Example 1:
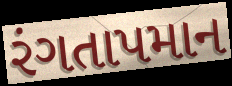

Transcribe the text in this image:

રંગતાપમાન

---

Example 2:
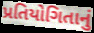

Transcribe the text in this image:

પ્રતિયોગિતાનું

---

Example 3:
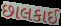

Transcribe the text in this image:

છાલકાઈ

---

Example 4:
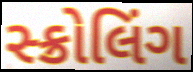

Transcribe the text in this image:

સ્ક્રોલિંગ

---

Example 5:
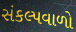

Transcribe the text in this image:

સંકલ્પવાળો